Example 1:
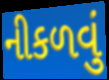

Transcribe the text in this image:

નીકળવું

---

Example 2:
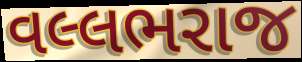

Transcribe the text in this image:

વલ્લભરાજ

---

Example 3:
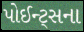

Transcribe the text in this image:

પોઈન્ટ્સના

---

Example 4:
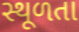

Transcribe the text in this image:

સ્થૂળતા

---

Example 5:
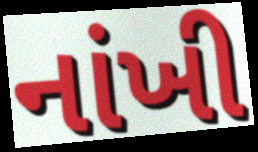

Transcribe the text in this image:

નાંખી